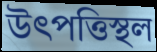
উৎপত্তিস্থল